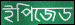
ইপিজেড